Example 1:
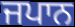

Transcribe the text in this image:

ਜਪਾਨ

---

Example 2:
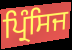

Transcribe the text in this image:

ਪ੍ਰਿੰਸਿਜ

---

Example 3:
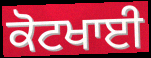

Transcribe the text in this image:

ਕੋਟਖਾਈ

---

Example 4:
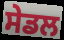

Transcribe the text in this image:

ਸੇਡਲ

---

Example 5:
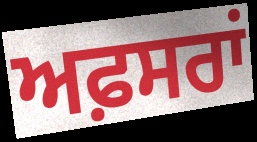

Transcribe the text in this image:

ਅਫ਼ਸਰਾਂ